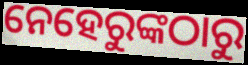
ନେହେରୁଙ୍କଠାରୁ